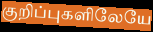
குறிப்புகளிலேயே